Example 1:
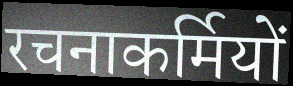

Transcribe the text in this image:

रचनाकर्मियों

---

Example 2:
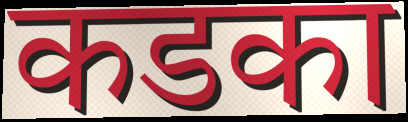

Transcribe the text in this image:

कडका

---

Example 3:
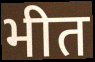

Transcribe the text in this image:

भीत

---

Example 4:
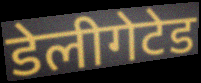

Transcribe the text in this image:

डेलीगेटेड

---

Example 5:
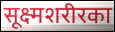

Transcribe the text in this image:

सूक्ष्मशरीरका